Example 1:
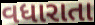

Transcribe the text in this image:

વધારાતા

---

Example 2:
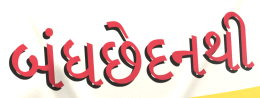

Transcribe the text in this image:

બંધછેદનથી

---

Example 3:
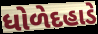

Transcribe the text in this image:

ધોળેદહાડે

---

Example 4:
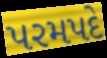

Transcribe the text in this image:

પરમપદે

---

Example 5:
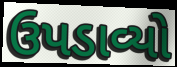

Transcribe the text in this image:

ઉપડાવ્યો